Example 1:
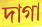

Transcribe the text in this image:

দাগা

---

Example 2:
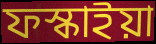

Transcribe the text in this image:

ফস্কাইয়া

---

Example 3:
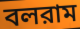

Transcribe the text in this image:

বলরাম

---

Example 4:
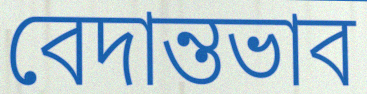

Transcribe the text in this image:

বেদান্তভাব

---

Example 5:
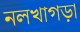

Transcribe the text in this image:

নলখাগড়া